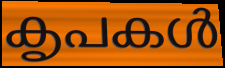
കൃപകൾ